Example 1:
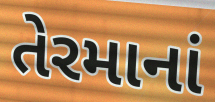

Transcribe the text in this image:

તેરમાનાં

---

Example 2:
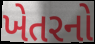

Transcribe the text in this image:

ખેતરનો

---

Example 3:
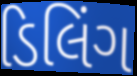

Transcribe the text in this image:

ડિલિંગ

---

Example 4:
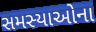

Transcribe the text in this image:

સમસ્યાઓના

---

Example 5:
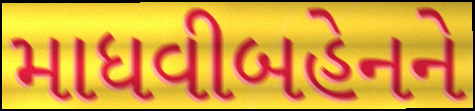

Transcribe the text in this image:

માધવીબહેનને